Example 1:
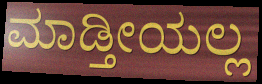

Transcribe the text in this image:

ಮಾಡ್ತೀಯಲ್ಲ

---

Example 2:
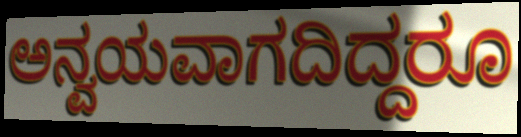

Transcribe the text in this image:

ಅನ್ವಯವಾಗದಿದ್ದರೂ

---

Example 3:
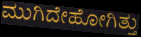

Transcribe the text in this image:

ಮುಗಿದೇಹೋಗಿತ್ತು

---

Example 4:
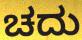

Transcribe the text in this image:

ಚದು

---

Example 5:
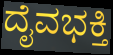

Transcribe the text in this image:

ದೈವಭಕ್ತಿ